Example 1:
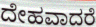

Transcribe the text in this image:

ದೇಹವಾದರೆ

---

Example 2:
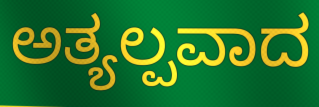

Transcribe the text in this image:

ಅತ್ಯಲ್ಪವಾದ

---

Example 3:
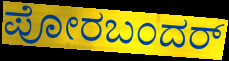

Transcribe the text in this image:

ಪೋರಬಂದರ್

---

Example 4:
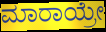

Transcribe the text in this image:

ಮಾರಾಯ್ರೇ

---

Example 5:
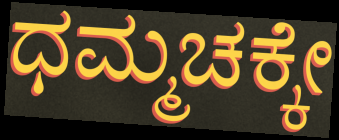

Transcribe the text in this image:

ಧಮ್ಮಚಕ್ಕೇ